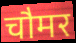
चौमर